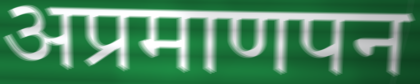
अप्रमाणपन